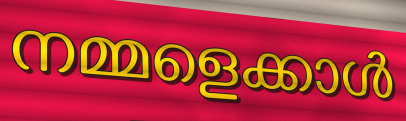
നമ്മളെക്കാൾ